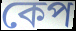
কেপ